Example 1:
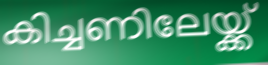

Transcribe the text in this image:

കിച്ചണിലേയ്ക്ക്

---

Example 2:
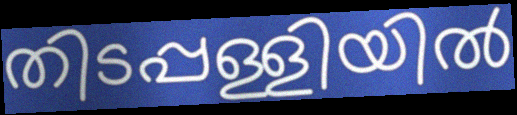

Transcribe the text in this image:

തിടപ്പള്ളിയിൽ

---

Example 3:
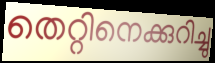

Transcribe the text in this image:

തെറ്റിനെക്കുറിച്ചു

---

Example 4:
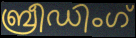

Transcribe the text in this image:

ബ്രീഡിംഗ്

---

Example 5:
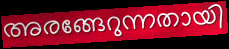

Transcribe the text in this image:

അരങ്ങേറുന്നതായി